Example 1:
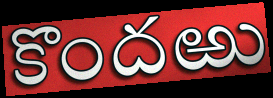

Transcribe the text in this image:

కొందఱు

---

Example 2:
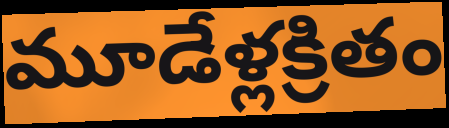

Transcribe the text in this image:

మూడేళ్లక్రితం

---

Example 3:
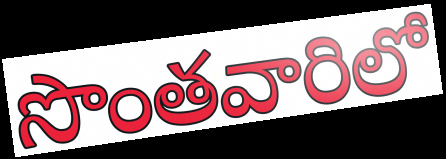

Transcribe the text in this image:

సొంతవారిలో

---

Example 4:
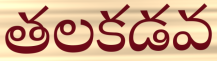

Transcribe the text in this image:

తలకడవ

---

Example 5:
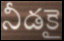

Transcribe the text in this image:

నీడకై